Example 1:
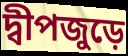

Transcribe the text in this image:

দ্বীপজুড়ে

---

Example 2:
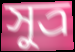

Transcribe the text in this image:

সুত্র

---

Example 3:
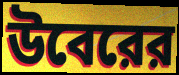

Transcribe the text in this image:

উবেরের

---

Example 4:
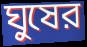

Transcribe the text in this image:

ঘুষের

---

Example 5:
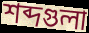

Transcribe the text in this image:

শব্দগুলা